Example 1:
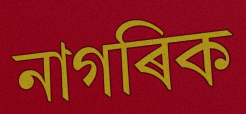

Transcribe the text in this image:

নাগৰিক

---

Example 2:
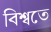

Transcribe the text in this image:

বিশ্বতে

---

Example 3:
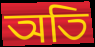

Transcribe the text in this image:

অতি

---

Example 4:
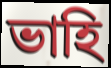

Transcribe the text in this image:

ভাহি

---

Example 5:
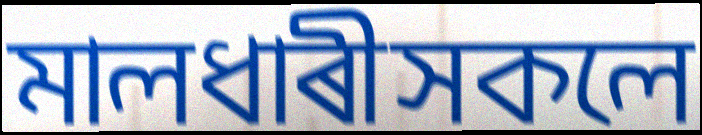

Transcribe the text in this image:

মালধাৰীসকলে